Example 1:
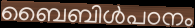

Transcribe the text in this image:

ബൈബിൾപഠനം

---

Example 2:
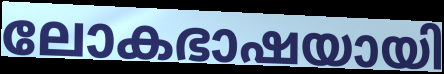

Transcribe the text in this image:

ലോകഭാഷയായി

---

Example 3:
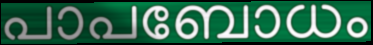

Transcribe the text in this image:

പാപബോധം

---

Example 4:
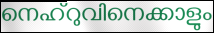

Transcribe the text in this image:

നെഹ്റുവിനെക്കാളും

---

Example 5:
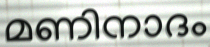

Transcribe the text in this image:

മണിനാദം